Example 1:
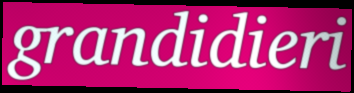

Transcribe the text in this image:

grandidieri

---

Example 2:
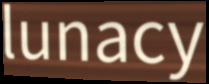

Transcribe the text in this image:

lunacy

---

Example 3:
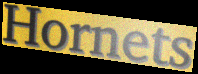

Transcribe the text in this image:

Hornets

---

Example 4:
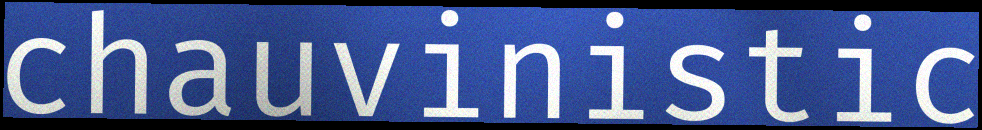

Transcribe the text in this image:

chauvinistic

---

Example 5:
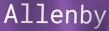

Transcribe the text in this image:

Allenby